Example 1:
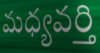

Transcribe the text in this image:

మధ్యవర్తి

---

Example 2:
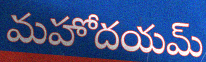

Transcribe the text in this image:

మహోదయమ్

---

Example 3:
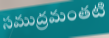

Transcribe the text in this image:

సముద్రమంతటి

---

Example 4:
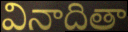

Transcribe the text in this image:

వినాదితా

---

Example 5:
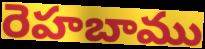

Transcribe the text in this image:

రెహబాము